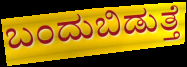
ಬಂದುಬಿಡುತ್ತೆ